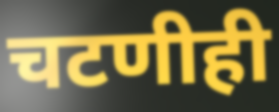
चटणीही